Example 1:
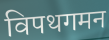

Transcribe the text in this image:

विपथगमन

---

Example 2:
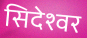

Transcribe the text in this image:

सिदेश्वर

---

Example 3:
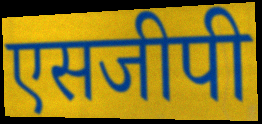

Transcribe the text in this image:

एसजीपी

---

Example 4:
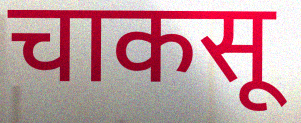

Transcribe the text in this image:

चाकसू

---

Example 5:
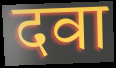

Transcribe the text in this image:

दवा